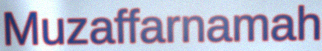
Muzaffarnamah